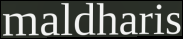
maldharis